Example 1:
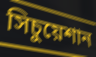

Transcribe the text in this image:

সিচুয়েশান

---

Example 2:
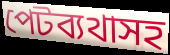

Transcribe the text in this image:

পেটব্যথাসহ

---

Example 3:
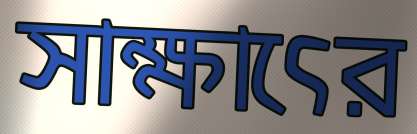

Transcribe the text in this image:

সাক্ষাৎের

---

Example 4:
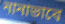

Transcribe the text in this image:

নানাভাবে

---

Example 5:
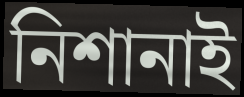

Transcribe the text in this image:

নিশানাই